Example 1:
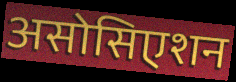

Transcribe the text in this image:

असोसिएशन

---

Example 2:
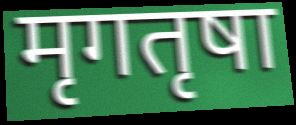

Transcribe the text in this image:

मृगतृषा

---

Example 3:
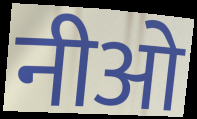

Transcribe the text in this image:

नीओ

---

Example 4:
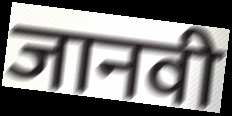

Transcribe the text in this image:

जानवी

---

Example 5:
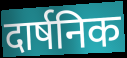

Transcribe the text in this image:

दार्षनिक